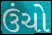
ઉંચો